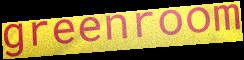
greenroom